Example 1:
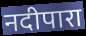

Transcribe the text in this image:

नदीपारा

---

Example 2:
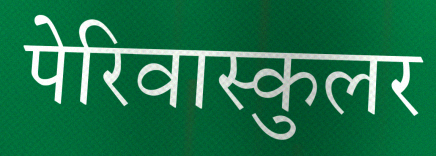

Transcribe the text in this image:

पेरिवास्कुलर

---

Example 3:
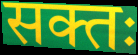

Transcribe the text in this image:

सक्तः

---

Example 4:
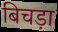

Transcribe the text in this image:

बिचड़ा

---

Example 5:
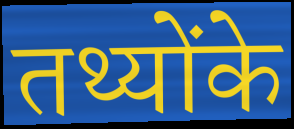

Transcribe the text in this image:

तथ्योंके